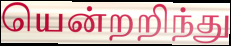
யென்றறிந்து